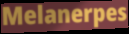
Melanerpes